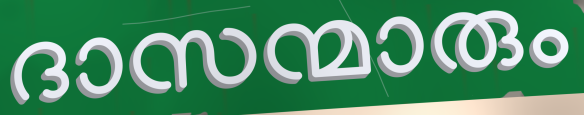
ദാസന്മാരും